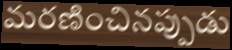
మరణించినప్పుడు